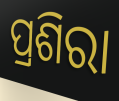
ପ୍ରଶିରା